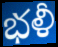
భళీ